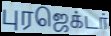
புரஜெக்டர்